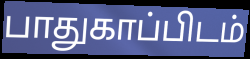
பாதுகாப்பிடம்